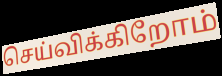
செய்விக்கிறோம்